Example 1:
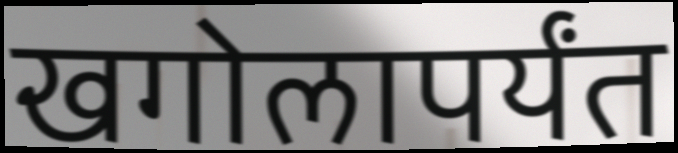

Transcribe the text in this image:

खगोलापर्यंत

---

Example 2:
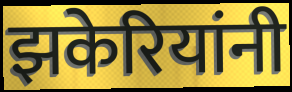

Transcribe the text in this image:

झकेरियांनी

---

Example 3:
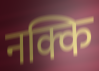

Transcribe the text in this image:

नक्कि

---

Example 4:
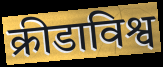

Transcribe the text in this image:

क्रीडाविश्व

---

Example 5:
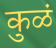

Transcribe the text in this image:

कुळं